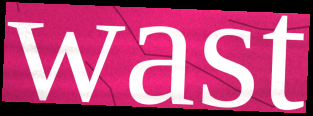
wast